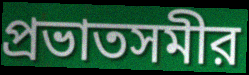
প্রভাতসমীর